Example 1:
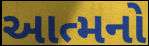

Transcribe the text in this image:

આત્મનો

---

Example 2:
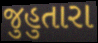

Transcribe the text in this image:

જુહુતારા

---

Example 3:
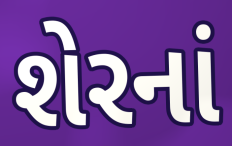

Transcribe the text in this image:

શેરનાં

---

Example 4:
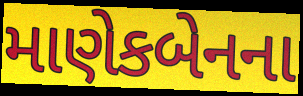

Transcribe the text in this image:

માણેકબેનના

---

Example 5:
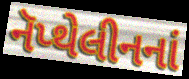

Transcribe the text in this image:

નૅપ્થેલીનનાં